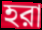
হরা